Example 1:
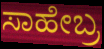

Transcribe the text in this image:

ಸಾಹೇಬ್ರ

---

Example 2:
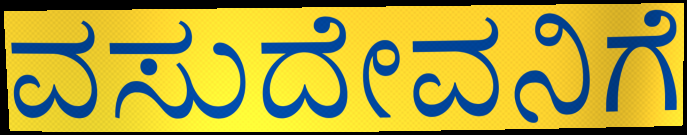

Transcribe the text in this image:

ವಸುದೇವನಿಗೆ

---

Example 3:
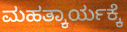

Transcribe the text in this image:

ಮಹತ್ಕಾರ್ಯಕ್ಕೆ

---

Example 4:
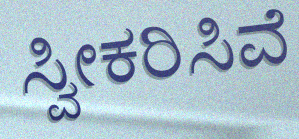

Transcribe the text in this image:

ಸ್ವೀಕರಿಸಿವೆ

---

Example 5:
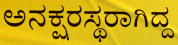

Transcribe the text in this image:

ಅನಕ್ಷರಸ್ಥರಾಗಿದ್ದ